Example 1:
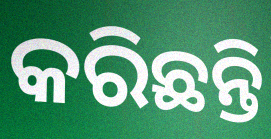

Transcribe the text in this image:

କରିଛନ୍ତି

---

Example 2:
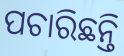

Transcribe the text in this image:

ପଚାରିଛନ୍ତି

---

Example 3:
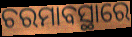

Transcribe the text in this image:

ଚରମାବସ୍ଥାରେ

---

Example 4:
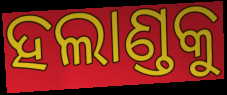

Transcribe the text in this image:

ହଲାଣ୍ଡକୁ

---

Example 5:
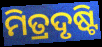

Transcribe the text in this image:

ମିତ୍ରଦୃଷ୍ଟି